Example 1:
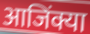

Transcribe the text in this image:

आजिंक्या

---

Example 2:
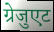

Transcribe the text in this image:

ग्रेजुएट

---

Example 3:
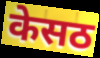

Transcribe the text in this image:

केसठ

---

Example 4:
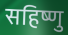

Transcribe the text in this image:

सहिष्णु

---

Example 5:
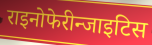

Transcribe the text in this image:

राइनोफेरीन्जाइटिस